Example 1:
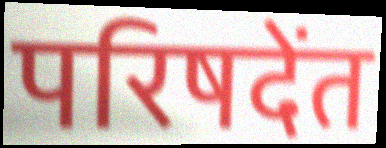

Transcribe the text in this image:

परिषदेंत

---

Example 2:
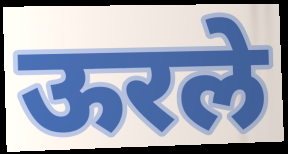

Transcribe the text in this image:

ऊरले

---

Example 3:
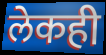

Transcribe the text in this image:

लेकही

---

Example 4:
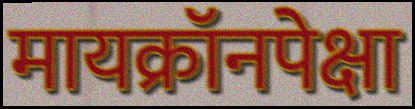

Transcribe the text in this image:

मायक्रॉनपेक्षा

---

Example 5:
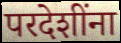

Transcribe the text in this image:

परदेशींना